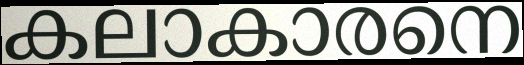
കലാകാരനെ